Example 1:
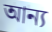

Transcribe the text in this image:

আন্য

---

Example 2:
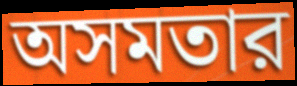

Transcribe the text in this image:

অসমতার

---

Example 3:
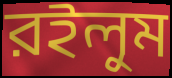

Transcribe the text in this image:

রইলুম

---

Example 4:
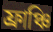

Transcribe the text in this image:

ফ্রাঞ্চি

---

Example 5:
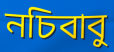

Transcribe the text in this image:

নচিবাবু